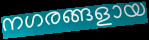
നഗരങ്ങളായ